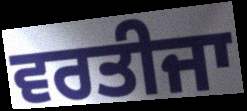
ਵਰਤੀਜਾ